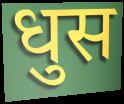
धुस